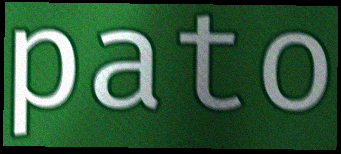
pato